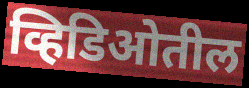
व्हिडिओतील